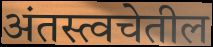
अंतस्त्वचेतील